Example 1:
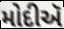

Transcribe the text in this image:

મોદીઍ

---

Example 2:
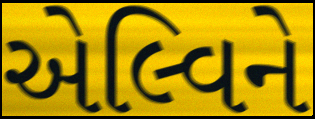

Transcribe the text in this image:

એલ્વિને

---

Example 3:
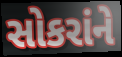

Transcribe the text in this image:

સોકરાંને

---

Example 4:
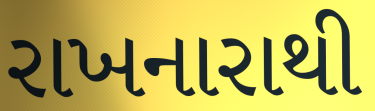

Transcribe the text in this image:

રાખનારાથી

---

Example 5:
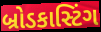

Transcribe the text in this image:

બ્રોડકાસ્ટિંગ